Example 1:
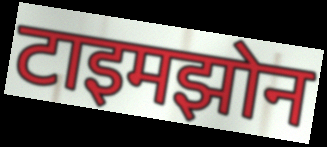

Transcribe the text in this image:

टाइमझोन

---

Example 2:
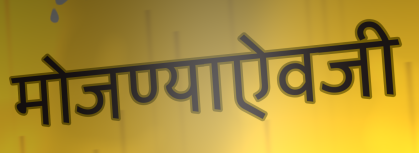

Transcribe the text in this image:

मोजण्याऐवजी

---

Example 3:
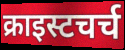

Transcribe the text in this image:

क्राइस्टचर्च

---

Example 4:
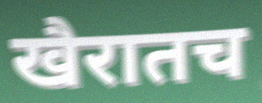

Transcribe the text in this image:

खैरातच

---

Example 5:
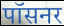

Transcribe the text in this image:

पॉसनर